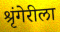
श्रृंगेरीला